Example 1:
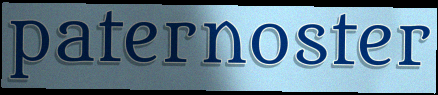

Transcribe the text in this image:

paternoster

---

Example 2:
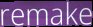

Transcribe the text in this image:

remake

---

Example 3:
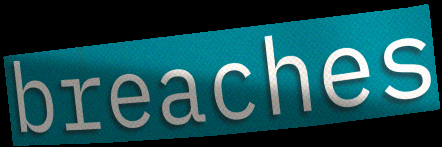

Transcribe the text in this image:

breaches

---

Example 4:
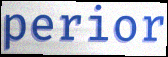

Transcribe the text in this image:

perior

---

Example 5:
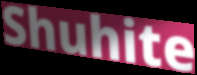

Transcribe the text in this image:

Shuhite